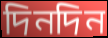
দিনদিন